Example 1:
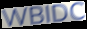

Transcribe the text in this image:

WBIDC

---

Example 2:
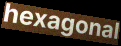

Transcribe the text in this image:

hexagonal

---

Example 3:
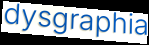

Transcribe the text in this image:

dysgraphia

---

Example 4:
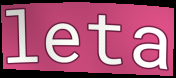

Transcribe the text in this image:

leta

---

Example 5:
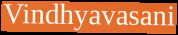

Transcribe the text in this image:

Vindhyavasani